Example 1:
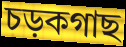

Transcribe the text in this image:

চড়কগাছ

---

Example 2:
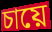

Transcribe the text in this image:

চায়ে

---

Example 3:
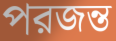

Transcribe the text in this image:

পরজন্ত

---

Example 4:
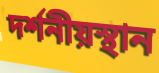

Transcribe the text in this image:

দর্শনীয়স্থান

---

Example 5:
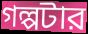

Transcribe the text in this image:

গল্পটার